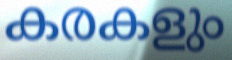
കരകളും